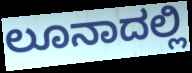
ಲೂನಾದಲ್ಲಿ